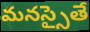
మనస్సైతే